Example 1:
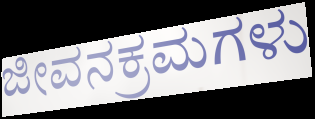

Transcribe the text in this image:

ಜೀವನಕ್ರಮಗಳು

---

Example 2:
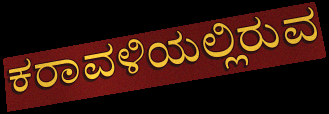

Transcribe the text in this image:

ಕರಾವಳಿಯಲ್ಲಿರುವ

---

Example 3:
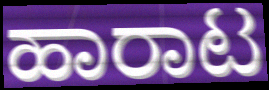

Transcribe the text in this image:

ಹಾರಾಟ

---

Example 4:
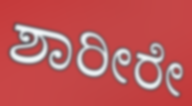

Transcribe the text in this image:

ಶಾರೀರೇ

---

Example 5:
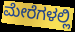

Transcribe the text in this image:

ಮೇರೆಗಳಲ್ಲಿ